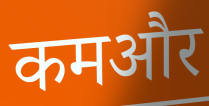
कमऔर